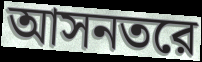
আসনতরে